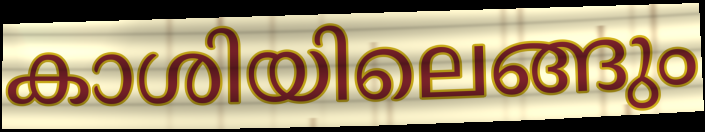
കാശിയിലെങ്ങും